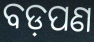
ବଡ଼ପଣ